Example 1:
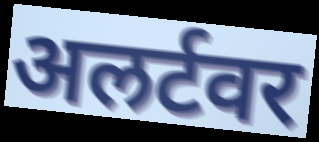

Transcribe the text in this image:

अलर्टवर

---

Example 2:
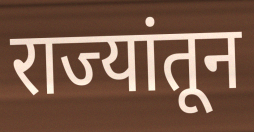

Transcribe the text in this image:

राज्यांतून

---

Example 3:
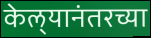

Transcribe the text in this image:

केल्यानंतरच्या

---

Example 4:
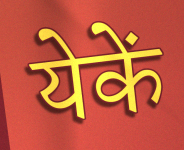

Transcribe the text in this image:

येकें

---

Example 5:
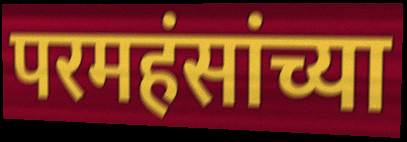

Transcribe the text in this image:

परमहंसांच्या